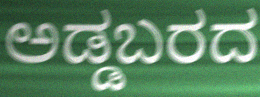
ಅಡ್ಡಬರದ